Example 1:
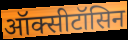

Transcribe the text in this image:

ऑक्सीटॉसिन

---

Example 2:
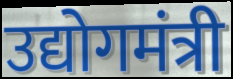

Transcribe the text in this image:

उद्योगमंत्री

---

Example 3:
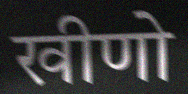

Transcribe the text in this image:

खीणो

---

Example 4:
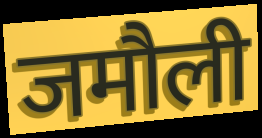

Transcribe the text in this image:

जमौली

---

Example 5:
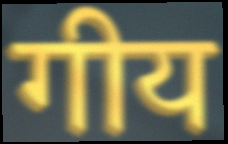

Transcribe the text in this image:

गीय